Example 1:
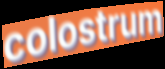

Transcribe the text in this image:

colostrum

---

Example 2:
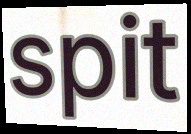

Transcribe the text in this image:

spit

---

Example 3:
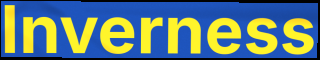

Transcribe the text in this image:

Inverness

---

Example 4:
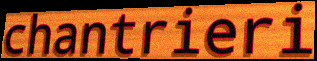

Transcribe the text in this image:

chantrieri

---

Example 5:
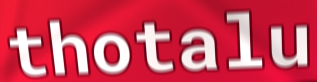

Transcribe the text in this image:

thotalu